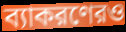
ব্যাকরণেরও